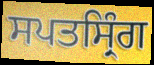
ਸਪਤਸ੍ਰਿੰਗ